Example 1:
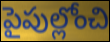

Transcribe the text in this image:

పైపుల్లోంచి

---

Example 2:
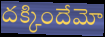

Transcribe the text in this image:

దక్కిందేమో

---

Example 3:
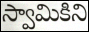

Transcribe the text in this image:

స్వామికిని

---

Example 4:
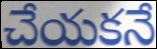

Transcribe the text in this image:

చేయకనే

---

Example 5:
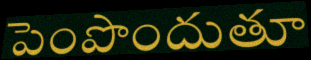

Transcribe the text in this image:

పెంపొందుతూ